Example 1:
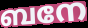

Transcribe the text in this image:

ബനേ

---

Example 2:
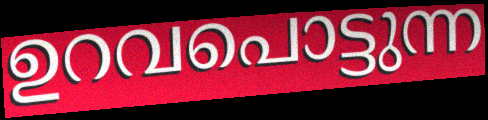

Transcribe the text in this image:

ഉറവപൊട്ടുന്ന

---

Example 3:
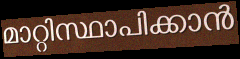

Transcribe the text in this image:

മാറ്റിസ്ഥാപിക്കാൻ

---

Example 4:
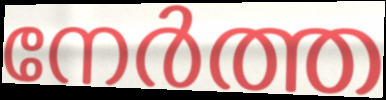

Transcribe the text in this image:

നേർത്ത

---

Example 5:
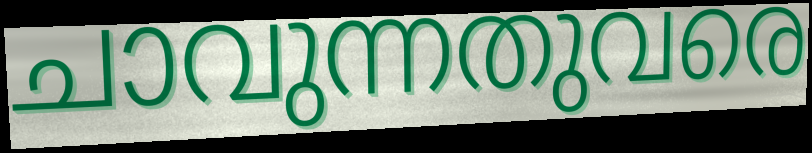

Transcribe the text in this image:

ചാവുന്നതുവരെ